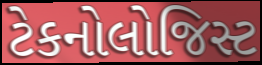
ટેકનોલોજિસ્ટ